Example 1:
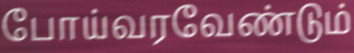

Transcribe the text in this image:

போய்வரவேண்டும்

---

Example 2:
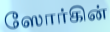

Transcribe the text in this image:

ஸோர்கின்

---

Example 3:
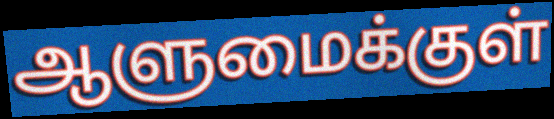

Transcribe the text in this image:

ஆளுமைக்குள்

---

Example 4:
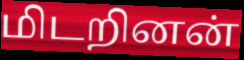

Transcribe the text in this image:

மிடறினன்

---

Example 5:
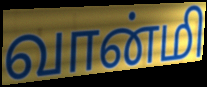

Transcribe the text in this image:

வான்மி